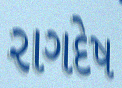
રાગદેષ